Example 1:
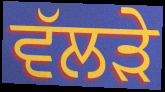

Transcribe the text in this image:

ਵੱਲੜੇ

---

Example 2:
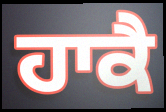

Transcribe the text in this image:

ਹਾਕੈ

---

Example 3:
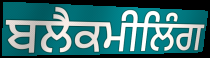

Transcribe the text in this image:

ਬਲੈਕਮੀਲਿੰਗ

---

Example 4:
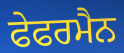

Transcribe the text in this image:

ਫੇਫਰਮੈਨ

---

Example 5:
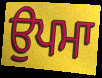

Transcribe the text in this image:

ਉਪਮਾ